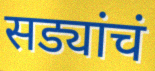
सड्यांचं